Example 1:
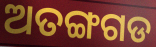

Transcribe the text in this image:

ଅତଙ୍ଗଗଡ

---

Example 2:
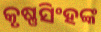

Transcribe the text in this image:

କୃଷ୍ଣସିଂହଙ୍କ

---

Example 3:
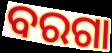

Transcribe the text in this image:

ବରଗା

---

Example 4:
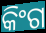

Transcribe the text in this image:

କିଂଗ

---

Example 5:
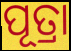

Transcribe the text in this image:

ପୂତ୍ରା